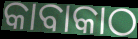
କାବାକାଠ